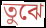
তুঝে